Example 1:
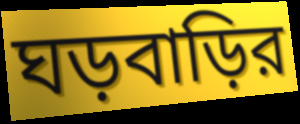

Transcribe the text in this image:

ঘড়বাড়ির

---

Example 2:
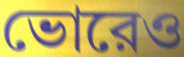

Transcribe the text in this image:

ভোরেও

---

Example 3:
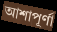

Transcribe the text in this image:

আশাপূর্ণা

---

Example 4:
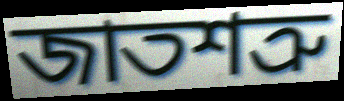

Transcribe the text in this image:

জাতশত্রু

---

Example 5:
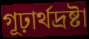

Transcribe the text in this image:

গূঢ়ার্থদ্রষ্টা